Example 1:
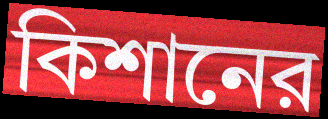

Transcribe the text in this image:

কিশানের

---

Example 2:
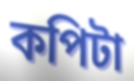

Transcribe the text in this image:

কপিটা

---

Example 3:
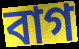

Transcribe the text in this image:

বাগ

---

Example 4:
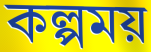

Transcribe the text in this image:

কল্পময়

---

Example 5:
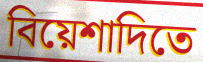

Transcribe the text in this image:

বিয়েশাদিতে